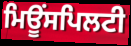
ਮਿਊਂਸਪਿਲਟੀ